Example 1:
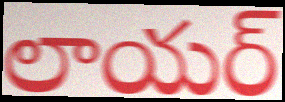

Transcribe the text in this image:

లాయర్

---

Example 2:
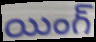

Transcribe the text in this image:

యింగ్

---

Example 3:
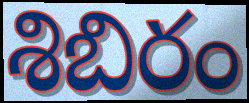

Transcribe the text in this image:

శిబిరం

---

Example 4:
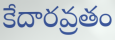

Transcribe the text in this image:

కేదారవ్రతం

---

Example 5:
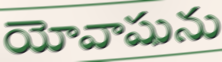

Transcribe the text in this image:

యోవాషును